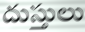
దుస్తులు